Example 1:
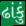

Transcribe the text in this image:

ઢાંકું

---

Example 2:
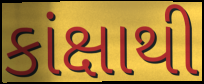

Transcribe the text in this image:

કાંક્ષાથી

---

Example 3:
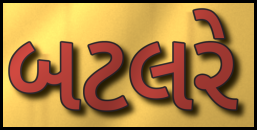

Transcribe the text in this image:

બટલરે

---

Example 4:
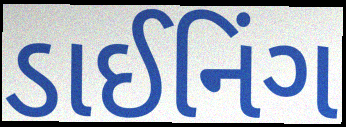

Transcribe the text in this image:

ડાઈનિંગ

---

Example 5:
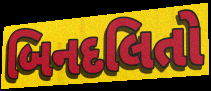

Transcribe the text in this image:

બિનદલિતો